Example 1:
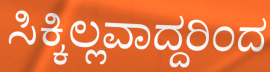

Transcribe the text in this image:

ಸಿಕ್ಕಿಲ್ಲವಾದ್ದರಿಂದ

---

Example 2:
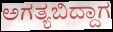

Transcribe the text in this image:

ಅಗತ್ಯಬಿದ್ದಾಗ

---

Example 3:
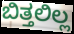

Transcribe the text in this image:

ಬಿತ್ತಲಿಲ್ಲ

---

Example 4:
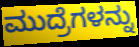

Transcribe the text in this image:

ಮುದ್ರೆಗಳನ್ನು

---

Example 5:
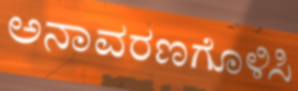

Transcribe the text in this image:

ಅನಾವರಣಗೊಳಿಸಿ